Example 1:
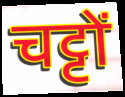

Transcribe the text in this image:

चट्टों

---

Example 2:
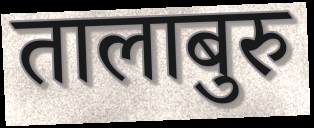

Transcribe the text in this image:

तालाबुरु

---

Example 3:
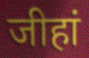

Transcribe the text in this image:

जीहां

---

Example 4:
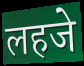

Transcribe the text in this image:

लहजे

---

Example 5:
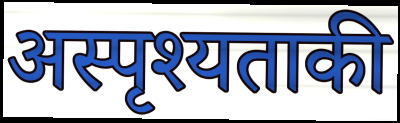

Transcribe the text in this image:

अस्पृश्यताकी